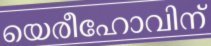
യെരീഹോവിന്